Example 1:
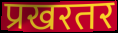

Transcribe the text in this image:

प्रखरतर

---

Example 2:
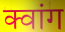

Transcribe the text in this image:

क्वांग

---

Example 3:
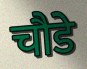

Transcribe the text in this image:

चौडे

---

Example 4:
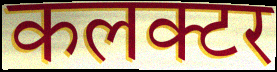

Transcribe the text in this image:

कलक्टर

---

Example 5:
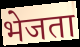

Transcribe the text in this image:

भेजता